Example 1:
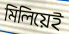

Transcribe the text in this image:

মিলিয়েই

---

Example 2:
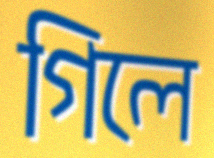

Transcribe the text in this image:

গিলে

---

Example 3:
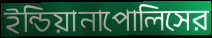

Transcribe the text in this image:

ইন্ডিয়ানাপোলিসের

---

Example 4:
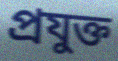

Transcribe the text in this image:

প্রযুক্ত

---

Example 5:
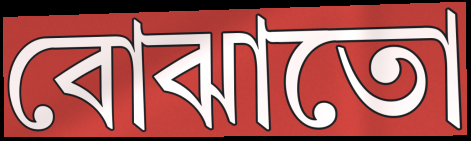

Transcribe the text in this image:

বোঝাতো